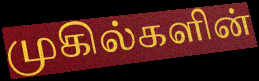
முகில்களின்